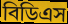
বিডিএস